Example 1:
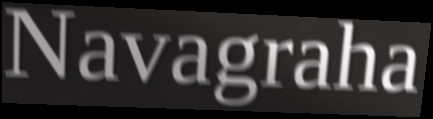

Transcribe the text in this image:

Navagraha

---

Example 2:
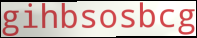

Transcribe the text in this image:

gihbsosbcg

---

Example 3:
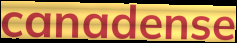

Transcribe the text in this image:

canadense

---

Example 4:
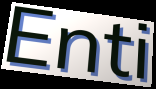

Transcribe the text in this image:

Enti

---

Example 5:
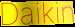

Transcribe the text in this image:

Daikin